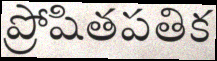
ప్రోషితపతిక